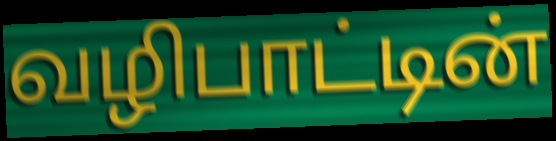
வழிபாட்டின்